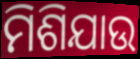
ମିଶିଯାଉ